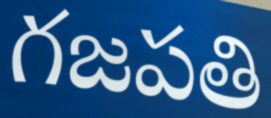
గజపతి